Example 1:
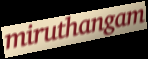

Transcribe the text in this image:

miruthangam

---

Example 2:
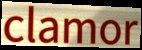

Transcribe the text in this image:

clamor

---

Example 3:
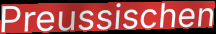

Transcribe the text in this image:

Preussischen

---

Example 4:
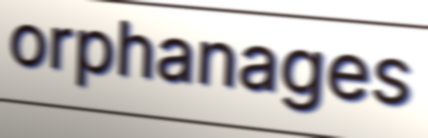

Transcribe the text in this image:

orphanages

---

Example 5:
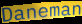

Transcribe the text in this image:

Daneman